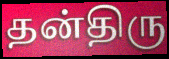
தன்திரு